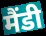
मैंडी